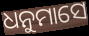
ଧନୁମାସେ